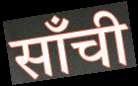
साँची